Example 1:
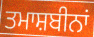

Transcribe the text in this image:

ਤਮਾਸ਼ਬੀਨਾਂ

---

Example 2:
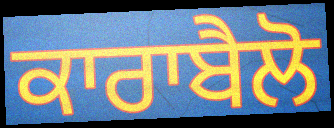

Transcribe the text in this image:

ਕਾਰਾਬੈਲੋ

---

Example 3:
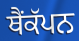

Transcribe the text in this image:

ਥੈਂਕੱਪਨ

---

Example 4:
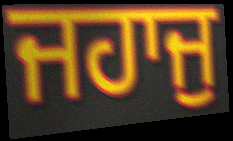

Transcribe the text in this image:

ਜਹਾਜੁ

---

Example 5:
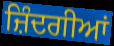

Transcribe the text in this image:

ਜ਼ਿੰਦਗੀਆਂ